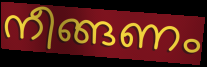
നീങ്ങണം